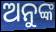
ଅନୁଙ୍କ